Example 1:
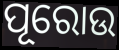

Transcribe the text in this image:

ପୂରୋଉ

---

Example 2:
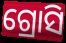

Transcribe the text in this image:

ଗ୍ରୋସି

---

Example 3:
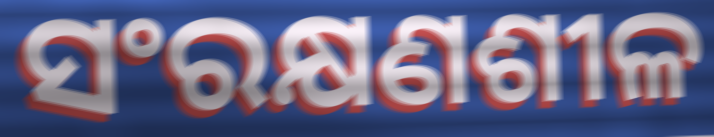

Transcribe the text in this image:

ସଂରକ୍ଷଣଶୀଳ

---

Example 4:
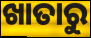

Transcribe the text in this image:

ଖାତାରୁ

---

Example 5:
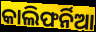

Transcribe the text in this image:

କାଲିଫର୍ନିଆ